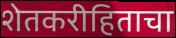
शेतकरीहिताचा